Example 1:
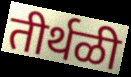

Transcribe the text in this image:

तीर्थळी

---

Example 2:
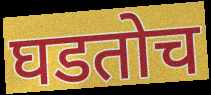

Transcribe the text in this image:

घडतोच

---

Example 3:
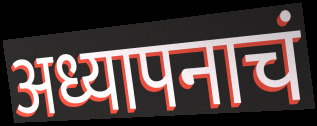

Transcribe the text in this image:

अध्यापनाचं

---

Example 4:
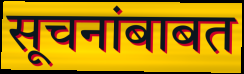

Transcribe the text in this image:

सूचनांबाबत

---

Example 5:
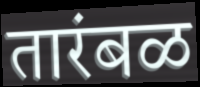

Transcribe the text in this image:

तारंबळ